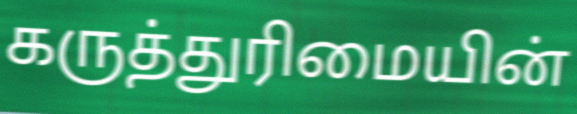
கருத்துரிமையின்